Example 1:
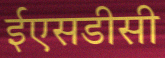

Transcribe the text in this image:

ईएसडीसी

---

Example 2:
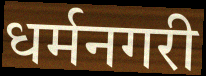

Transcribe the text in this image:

धर्मनगरी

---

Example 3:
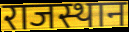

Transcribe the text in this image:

राजस्थान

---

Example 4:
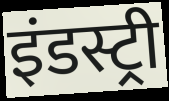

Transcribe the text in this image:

इंडस्ट्री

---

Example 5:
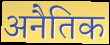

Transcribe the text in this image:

अनैतिक